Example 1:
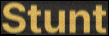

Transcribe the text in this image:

Stunt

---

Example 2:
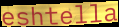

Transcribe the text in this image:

eshtella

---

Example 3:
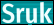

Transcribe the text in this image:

Sruk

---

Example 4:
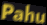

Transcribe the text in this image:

Pahu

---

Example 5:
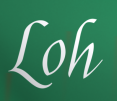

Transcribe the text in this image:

Loh